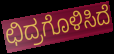
ಛಿದ್ರಗೊಳಿಸಿದೆ